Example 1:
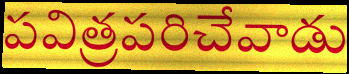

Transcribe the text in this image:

పవిత్రపరిచేవాడు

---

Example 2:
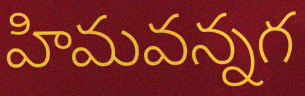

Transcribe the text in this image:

హిమవన్నగ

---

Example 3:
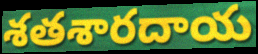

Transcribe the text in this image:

శతశారదాయ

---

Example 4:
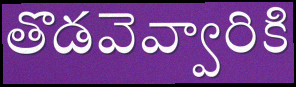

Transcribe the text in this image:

తొడవెవ్వారికి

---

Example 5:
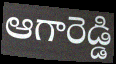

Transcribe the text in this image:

ఆగారెడ్డి